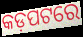
କଡ଼ପଟରେ